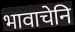
भावाचेनि